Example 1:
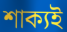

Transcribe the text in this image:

শাক্যই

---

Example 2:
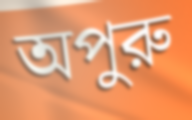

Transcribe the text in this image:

অপুরু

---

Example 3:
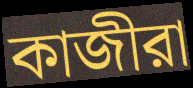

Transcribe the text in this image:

কাজীরা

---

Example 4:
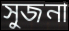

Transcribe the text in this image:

সুজনা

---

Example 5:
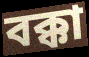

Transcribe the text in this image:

বক্কা